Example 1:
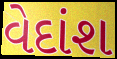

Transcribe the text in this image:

વેદાંશ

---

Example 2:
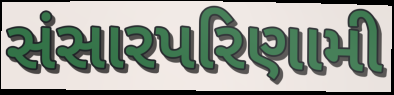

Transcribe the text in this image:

સંસારપરિણામી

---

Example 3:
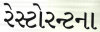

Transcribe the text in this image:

રેસ્ટોરન્ટના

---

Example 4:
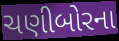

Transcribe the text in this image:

ચણીબોરના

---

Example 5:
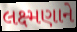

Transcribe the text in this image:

લક્ષ્મણાને